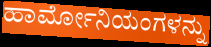
ಹಾರ್ಮೋನಿಯಂಗಳನ್ನು